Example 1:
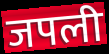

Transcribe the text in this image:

जपली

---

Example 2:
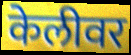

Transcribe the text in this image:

केलीवर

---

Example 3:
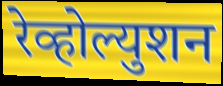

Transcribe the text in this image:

रेव्होल्युशन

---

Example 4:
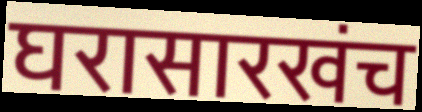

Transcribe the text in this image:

घरासारखंच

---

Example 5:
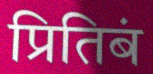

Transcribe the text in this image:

प्रितिबं